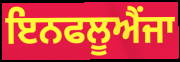
ਇਨਫਲੂਐਂਜਾ